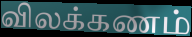
விலக்கணம்